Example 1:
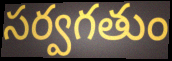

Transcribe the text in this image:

సర్వగతుం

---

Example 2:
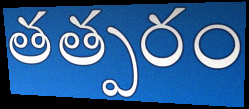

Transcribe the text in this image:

తత్పరం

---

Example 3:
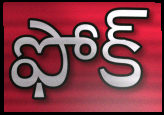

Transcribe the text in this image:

ఫోక్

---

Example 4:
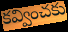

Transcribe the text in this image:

కవ్వించకు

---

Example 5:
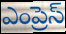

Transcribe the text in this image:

ఎంప్రెస్